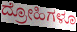
ದ್ರೋಹಿಗಳೂ